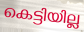
കെട്ടിയില്ല